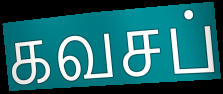
கவசப்